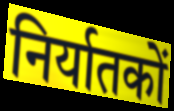
निर्यातकों